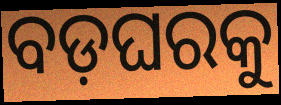
ବଡ଼ଘରକୁ